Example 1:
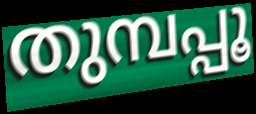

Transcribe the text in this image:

തുമ്പപ്പൂ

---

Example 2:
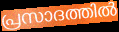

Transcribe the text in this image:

പ്രസാദത്തിൽ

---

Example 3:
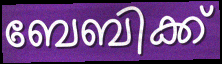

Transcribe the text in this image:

ബേബിക്ക്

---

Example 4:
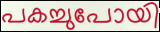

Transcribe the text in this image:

പകച്ചുപോയി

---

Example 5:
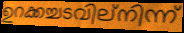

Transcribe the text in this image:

ഉറക്കച്ചടവില്നിന്ന്